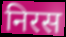
निरस